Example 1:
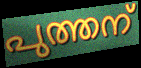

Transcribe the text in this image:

പുത്തന്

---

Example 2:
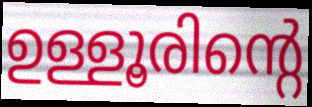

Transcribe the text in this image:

ഉള്ളൂരിന്റെ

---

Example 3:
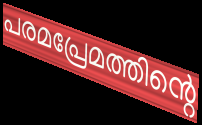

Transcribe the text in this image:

പരമപ്രേമത്തിന്റെ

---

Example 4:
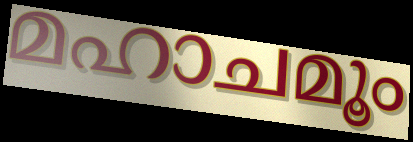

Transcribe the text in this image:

മഹാചമൂം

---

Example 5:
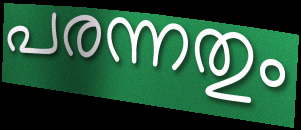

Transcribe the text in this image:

പരന്നതും